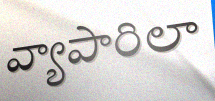
వ్యాపారిలా